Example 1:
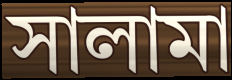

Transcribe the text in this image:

সালামা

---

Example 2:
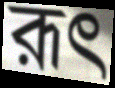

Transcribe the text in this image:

রূৎ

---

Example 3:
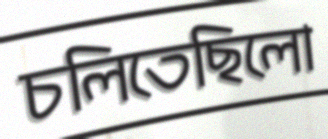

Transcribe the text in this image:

চলিতেছিলো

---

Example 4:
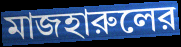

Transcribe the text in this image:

মাজহারুলের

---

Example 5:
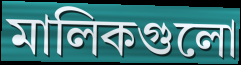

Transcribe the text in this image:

মালিকগুলো